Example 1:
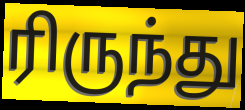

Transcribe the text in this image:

ரிருந்து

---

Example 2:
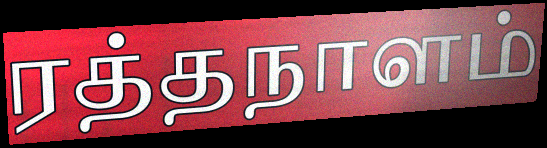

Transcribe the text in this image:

ரத்தநாளம்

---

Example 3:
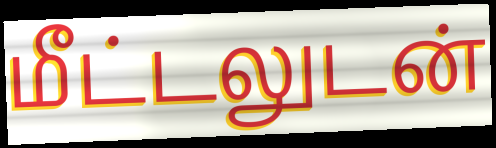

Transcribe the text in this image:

மீட்டலுடன்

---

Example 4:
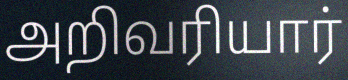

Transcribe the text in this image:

அறிவரியார்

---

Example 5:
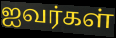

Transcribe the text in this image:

ஐவர்கள்